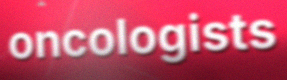
oncologists